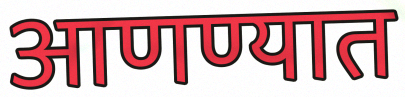
आणण्यात